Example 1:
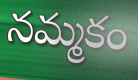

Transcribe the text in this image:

నమ్మకం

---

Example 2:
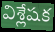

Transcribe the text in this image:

విశ్లేషక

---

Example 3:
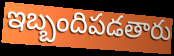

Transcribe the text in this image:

ఇబ్బందిపడతారు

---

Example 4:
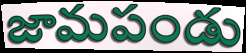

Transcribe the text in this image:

జామపండు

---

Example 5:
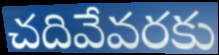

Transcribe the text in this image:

చదివేవరకు